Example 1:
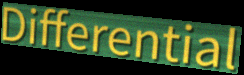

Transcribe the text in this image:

Differential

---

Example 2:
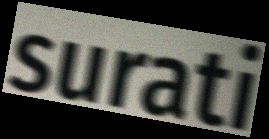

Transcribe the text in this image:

surati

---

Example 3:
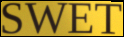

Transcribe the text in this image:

SWET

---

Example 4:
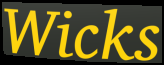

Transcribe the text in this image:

Wicks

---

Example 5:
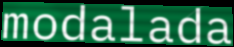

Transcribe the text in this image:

modalada